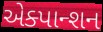
એક્પાન્શન